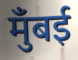
मुँबई